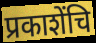
प्रकाशेंचि